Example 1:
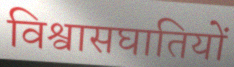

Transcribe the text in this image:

विश्वासघातियों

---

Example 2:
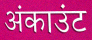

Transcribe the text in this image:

अंकाउंट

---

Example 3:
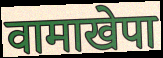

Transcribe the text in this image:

वामाखेपा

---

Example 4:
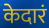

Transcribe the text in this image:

केदारं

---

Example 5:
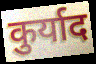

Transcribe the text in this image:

कुर्याद